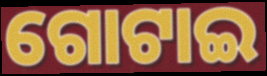
ଗୋଟାଇ